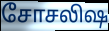
சோசலிஷ